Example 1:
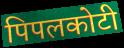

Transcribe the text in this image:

पिपलकोटी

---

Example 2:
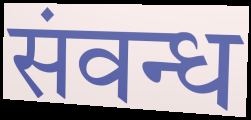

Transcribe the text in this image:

संवन्ध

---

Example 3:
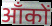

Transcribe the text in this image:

आँकों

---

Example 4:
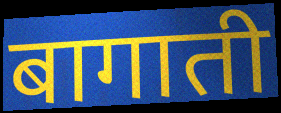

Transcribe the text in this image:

बागाती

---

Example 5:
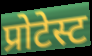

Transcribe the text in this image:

प्रोटेस्ट